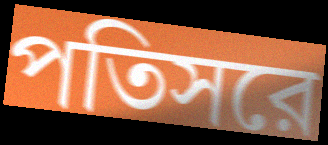
পতিসরে